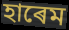
হাৰেম